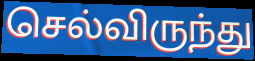
செல்விருந்து